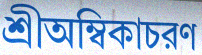
শ্রীঅম্বিকাচরণ